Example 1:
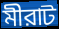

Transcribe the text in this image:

মীরাট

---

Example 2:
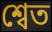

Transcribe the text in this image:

শ্বেত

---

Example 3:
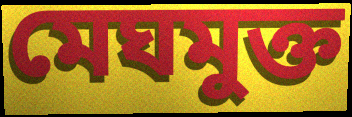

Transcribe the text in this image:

মেঘমুক্ত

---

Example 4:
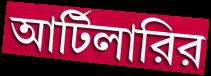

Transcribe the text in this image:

আর্টিলারির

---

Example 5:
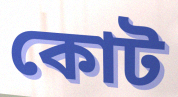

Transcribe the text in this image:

কোট